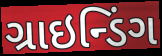
ગ્રાઇન્ડિંગ